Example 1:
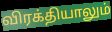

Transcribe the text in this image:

விரக்தியாலும்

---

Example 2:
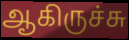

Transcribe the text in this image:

ஆகிருச்சு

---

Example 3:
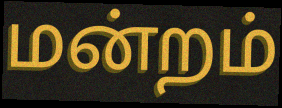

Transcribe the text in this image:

மன்றம்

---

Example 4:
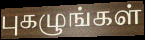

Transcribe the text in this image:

புகழுங்கள்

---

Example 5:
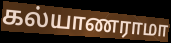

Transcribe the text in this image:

கல்யாணராமா